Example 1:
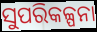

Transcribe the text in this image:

ସୁପରିକଳ୍ପନା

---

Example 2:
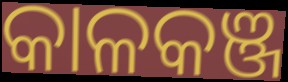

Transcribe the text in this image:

କାଳକଞ୍ଜ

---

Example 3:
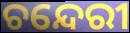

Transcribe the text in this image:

ଚନ୍ଦେରୀ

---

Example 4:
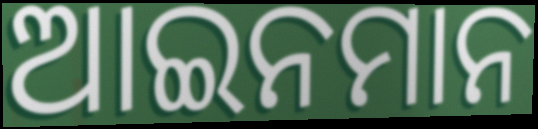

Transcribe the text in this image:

ଆଇନମାନ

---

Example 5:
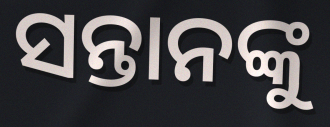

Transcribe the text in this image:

ସନ୍ତାନଙ୍କୁ